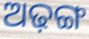
ଅଢ଼ଙ୍ଗ